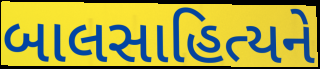
બાલસાહિત્યને